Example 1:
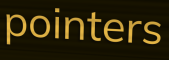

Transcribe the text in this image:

pointers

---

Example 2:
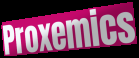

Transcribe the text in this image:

Proxemics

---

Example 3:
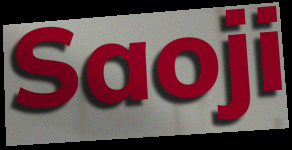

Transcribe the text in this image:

Saoji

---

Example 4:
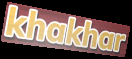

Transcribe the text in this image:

khakhar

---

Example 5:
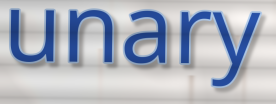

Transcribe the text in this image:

unary